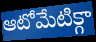
ఆటోమేటిక్గా